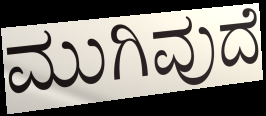
ಮುಗಿವುದೆ